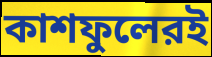
কাশফুলেরই